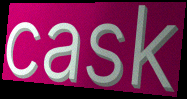
cask